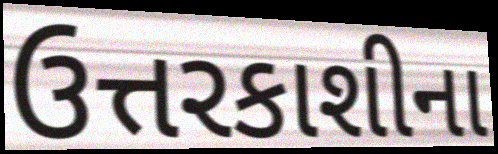
ઉત્તરકાશીના